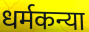
धर्मकन्या